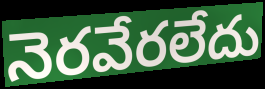
నెరవేరలేదు